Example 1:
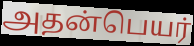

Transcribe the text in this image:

அதன்பெயர்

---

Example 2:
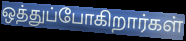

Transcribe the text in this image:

ஒத்துப்போகிறார்கள்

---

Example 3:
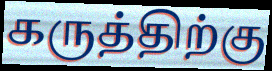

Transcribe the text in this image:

கருத்திற்கு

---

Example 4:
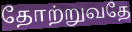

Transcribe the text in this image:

தோற்றுவதே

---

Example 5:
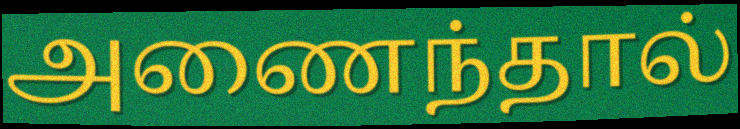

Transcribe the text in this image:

அணைந்தால்